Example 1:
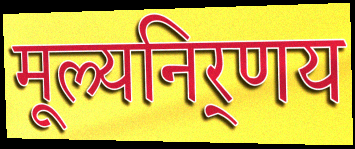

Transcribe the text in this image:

मूल्यनिर्णय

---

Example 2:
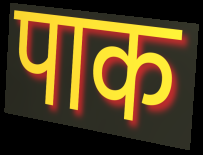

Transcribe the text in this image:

पाक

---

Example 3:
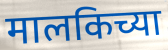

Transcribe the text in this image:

मालकिच्या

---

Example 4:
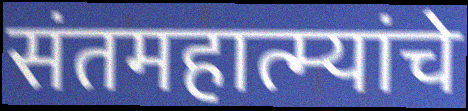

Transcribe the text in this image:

संतमहात्म्यांचे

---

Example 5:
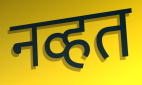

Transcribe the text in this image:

नव्हत